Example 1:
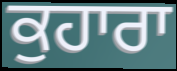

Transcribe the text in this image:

ਕੁਹਾਰਾ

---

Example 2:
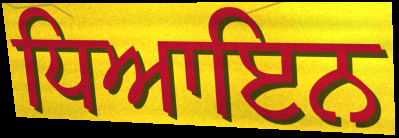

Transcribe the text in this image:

ਧਿਆਇਨ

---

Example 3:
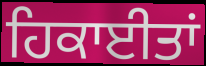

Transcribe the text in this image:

ਹਿਕਾਈਤਾਂ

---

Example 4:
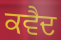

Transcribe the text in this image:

ਕਵੈਦ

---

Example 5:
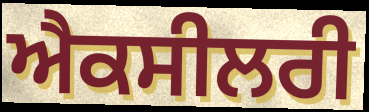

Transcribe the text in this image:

ਐਕਸੀਲਰੀ